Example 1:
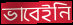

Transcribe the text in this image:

ভাবেইনি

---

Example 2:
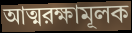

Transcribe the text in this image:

আত্মরক্ষামূলক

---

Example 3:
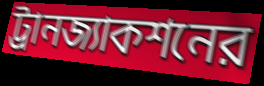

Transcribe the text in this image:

ট্রানজ্যাকশনের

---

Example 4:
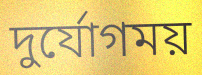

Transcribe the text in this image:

দুর্যোগময়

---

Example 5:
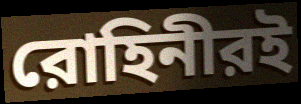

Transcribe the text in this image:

রোহিনীরই